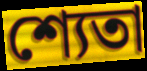
শ্যেতা